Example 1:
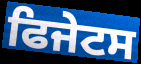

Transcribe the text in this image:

ਫਿਜੇਟਸ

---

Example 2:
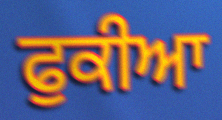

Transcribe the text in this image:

ਫੁਕੀਆ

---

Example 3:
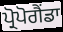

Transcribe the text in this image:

ਪ੍ਰੋਪੋਗੈਂਡਾ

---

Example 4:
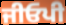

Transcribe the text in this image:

ਜੀਓਪੀ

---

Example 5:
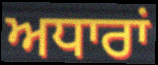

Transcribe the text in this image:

ਅਧਾਰਾਂ